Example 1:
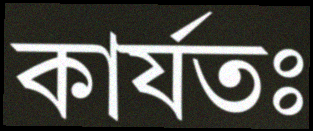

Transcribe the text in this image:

কাৰ্যতঃ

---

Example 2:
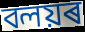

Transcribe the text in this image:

বলয়ৰ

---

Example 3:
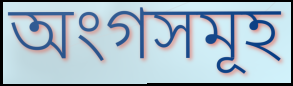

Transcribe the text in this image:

অংগসমূহ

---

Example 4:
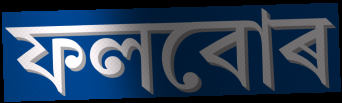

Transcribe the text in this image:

ফলবোৰ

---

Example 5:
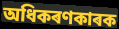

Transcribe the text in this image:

অধিকৰণকাৰক